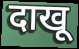
दाखू